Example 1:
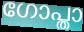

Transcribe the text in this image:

ഗോപ്താ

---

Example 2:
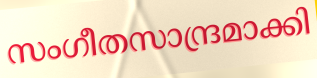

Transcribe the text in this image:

സംഗീതസാന്ദ്രമാക്കി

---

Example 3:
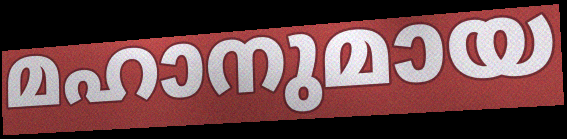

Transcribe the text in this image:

മഹാനുമായ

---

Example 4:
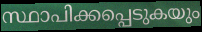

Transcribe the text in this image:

സ്ഥാപിക്കപ്പെടുകയും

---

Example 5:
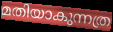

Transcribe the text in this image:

മതിയാകുന്നത്ര